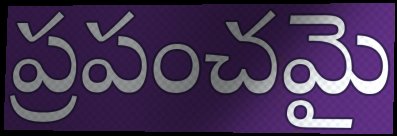
ప్రపంచమై